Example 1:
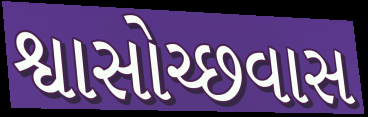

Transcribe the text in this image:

શ્વાસોચ્છવાસ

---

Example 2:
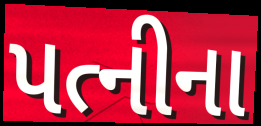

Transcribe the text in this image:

પત્નીના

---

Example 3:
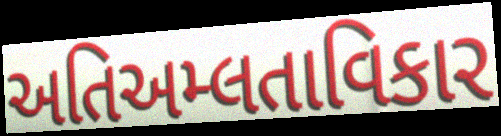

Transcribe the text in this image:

અતિઅમ્લતાવિકાર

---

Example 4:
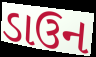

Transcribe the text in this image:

ડાઉન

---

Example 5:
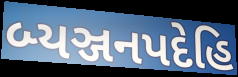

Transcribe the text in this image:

બ્યઞ્જનપદેહિ